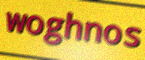
woghnos